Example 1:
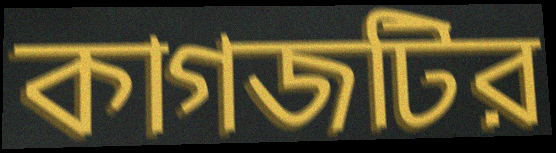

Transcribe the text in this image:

কাগজটির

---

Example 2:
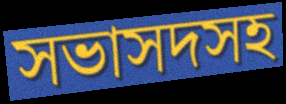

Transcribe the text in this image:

সভাসদসহ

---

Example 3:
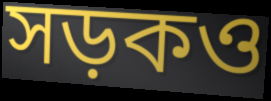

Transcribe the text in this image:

সড়কও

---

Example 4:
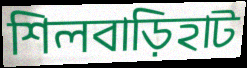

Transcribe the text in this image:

শিলবাড়িহাট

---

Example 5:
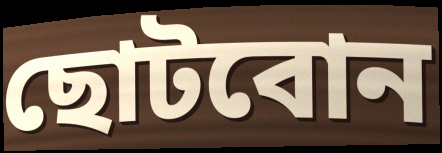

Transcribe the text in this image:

ছোটবোন